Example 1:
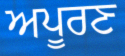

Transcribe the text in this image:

ਅਪੂਰਣ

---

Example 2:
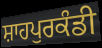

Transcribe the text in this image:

ਸ਼ਾਹਪੁਰਕੰਡੀ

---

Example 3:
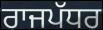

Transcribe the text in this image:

ਰਾਜਪੱਧਰ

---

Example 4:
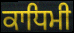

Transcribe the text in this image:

ਕਾਧਿਮੀ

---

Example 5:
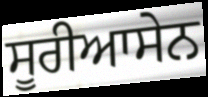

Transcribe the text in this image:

ਸੂਰੀਆਸੇਨ